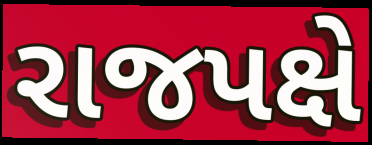
રાજપક્ષે